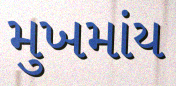
મુખમાંય